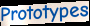
Prototypes